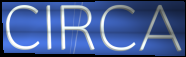
CIRCA